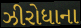
ઝીરોધાના